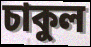
চাকুল